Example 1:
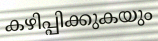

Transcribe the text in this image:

കഴിപ്പിക്കുകയും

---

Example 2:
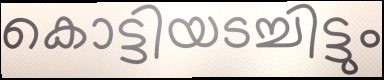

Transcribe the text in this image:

കൊട്ടിയടച്ചിട്ടും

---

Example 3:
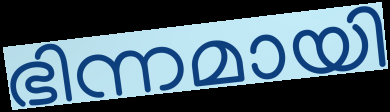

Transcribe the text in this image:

ഭിന്നമായി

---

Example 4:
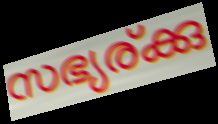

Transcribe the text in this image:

സഭ്യര്ക്കു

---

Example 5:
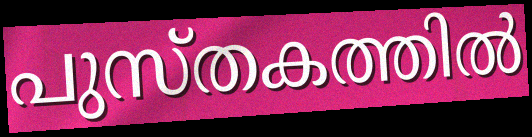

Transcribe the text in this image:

പുസ്തകത്തിൽ